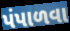
પંપાળવા